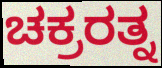
ಚಕ್ರರತ್ನ